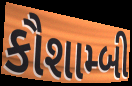
કૌશામ્બી